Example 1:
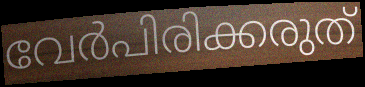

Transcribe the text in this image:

വേർപിരിക്കരുത്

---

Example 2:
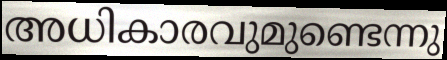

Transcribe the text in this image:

അധികാരവുമുണ്ടെന്നു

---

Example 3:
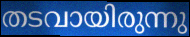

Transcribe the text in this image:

തടവായിരുന്നു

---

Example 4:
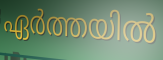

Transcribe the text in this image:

ഏർത്തയിൽ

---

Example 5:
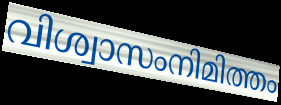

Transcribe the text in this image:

വിശ്വാസംനിമിത്തം